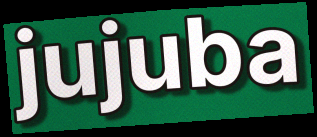
jujuba